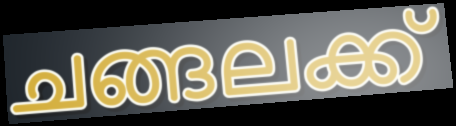
ചങ്ങലക്ക്